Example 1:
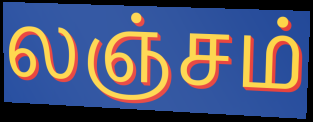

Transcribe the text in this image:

லஞ்சம்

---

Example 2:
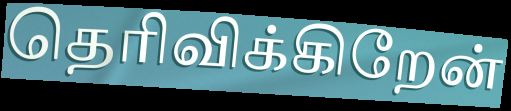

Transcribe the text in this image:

தெரிவிக்கிறேன்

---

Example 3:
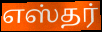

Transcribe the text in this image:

எஸ்தர்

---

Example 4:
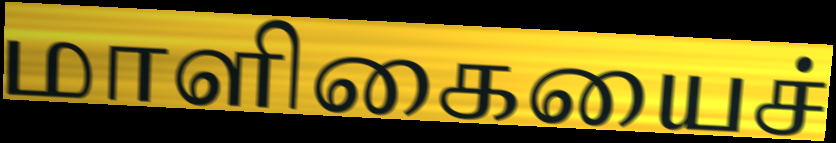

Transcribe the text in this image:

மாளிகையைச்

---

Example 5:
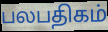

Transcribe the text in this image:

பலபதிகம்